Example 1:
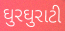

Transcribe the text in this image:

ઘુરઘુરાટી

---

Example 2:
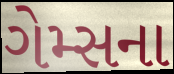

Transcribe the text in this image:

ગેમ્સના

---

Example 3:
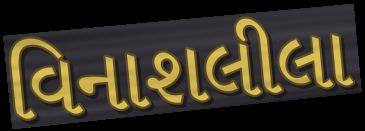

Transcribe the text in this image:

વિનાશલીલા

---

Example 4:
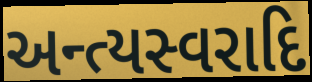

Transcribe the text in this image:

અન્ત્યસ્વરાદિ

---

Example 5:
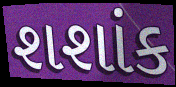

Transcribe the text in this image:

શશાંક